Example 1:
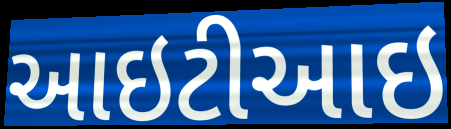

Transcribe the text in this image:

આઇટીઆઇ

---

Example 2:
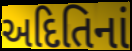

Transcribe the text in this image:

અદિતિનાં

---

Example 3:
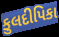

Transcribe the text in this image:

કુલદીપિકા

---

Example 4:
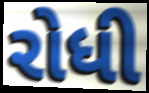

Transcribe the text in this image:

રોધી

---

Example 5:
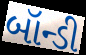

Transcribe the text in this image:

બૉન્ડી